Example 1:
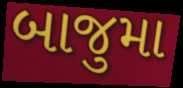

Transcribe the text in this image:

બાજુમા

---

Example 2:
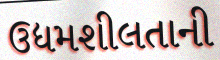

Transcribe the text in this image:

ઉદ્યમશીલતાની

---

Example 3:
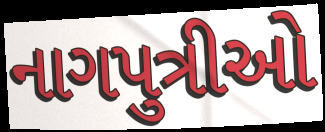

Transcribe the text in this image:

નાગપુત્રીઓ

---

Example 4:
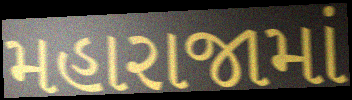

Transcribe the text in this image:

મહારાજામાં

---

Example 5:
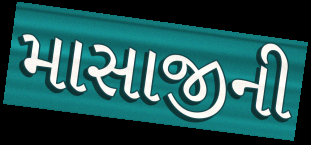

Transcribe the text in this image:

માસાજીની